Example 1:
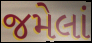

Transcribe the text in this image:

જમેલાં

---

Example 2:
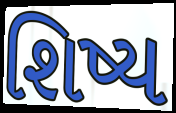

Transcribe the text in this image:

શિષ્ય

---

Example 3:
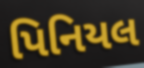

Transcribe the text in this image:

પિનિયલ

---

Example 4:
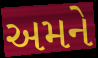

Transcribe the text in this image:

અમને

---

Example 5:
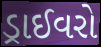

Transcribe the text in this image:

ડ્રાઈવરો